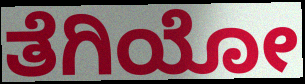
ತೆಗಿಯೋ